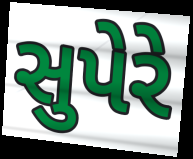
સુપેરે